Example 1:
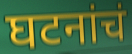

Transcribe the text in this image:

घटनांचं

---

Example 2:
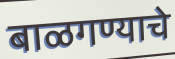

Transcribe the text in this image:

बाळगण्याचे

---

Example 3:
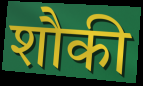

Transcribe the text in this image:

शौकी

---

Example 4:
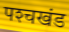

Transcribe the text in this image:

पश्चखंड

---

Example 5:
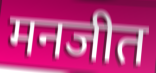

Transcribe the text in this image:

मनजीत